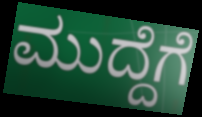
ಮುದ್ದೆಗೆ